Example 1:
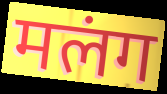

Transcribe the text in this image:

मलंग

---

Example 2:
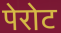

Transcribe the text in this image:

पेरोट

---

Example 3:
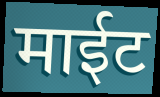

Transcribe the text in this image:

माईट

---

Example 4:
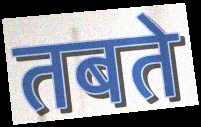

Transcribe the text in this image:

तबते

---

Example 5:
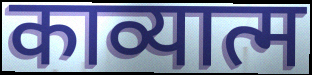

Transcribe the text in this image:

काव्यात्म